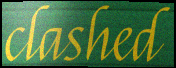
clashed